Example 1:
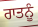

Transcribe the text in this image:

ਰਾਤਨੂੰ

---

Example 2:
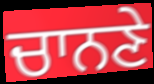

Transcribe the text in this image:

ਚਾਨਣੇ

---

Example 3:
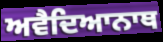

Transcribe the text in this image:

ਅਵੈਦਿਆਨਾਥ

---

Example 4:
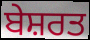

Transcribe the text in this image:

ਬੇਸ਼ਰਤ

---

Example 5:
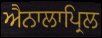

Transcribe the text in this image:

ਐਨਾਲਾਪ੍ਰਿਲ